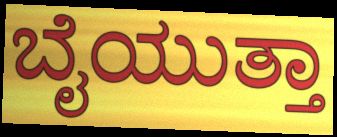
ಬೈಯುತ್ತಾ